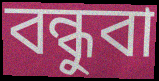
বন্ধুবা